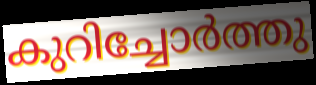
കുറിച്ചോർത്തു